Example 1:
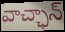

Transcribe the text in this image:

వాచ్ఛాన్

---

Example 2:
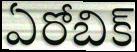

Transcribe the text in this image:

ఏరోబిక్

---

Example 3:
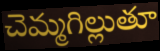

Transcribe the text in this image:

చెమ్మగిల్లుతూ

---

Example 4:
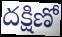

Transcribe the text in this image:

దక్షిణో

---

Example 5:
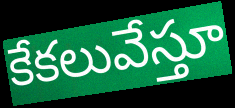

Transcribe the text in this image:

కేకలువేస్తూ